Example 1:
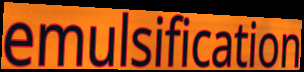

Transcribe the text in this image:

emulsification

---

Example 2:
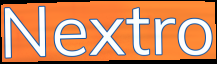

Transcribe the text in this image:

Nextro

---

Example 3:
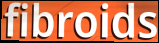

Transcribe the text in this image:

fibroids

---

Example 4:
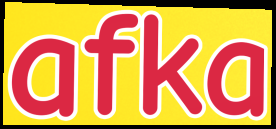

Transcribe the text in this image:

afka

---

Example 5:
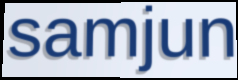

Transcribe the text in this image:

samjun